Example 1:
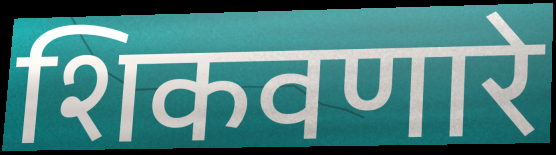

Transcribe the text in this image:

शिकवणारे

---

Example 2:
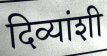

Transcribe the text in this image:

दिव्यांशी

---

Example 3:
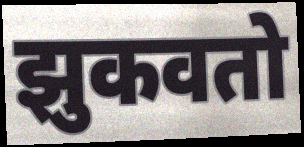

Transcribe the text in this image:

झुकवतो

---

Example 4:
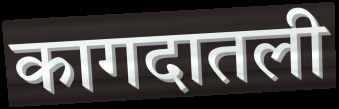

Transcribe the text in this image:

कागदातली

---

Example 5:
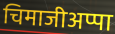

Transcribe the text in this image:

चिमाजीअप्पा